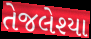
તેજલેશ્યા